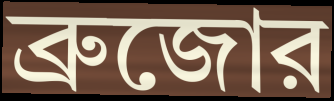
ব্রুজোর